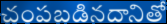
చంపబడినదానితో